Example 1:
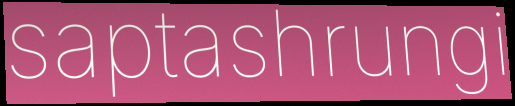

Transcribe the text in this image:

saptashrungi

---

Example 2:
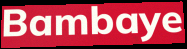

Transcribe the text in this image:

Bambaye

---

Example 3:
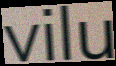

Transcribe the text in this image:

vilu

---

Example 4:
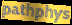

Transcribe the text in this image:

pathphys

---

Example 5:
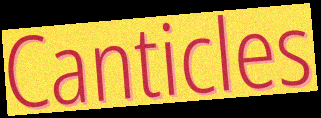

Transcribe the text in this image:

Canticles